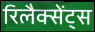
रिलैक्सेंट्स